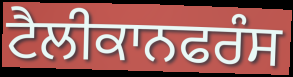
ਟੈਲੀਕਾਨਫਰੰਸ